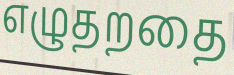
எழுதறதை